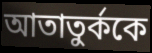
আতাতুর্ককে